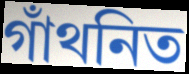
গাঁথনিত